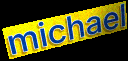
michael